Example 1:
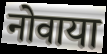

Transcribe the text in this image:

नोवाया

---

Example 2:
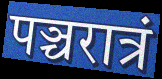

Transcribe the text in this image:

पञ्चरात्रं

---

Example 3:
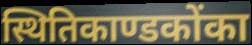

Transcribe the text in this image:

स्थितिकाण्डकोंका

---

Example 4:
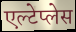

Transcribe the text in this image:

एल्टेप्लेस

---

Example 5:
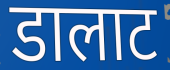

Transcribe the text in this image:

डालाट